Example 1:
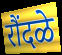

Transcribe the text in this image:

रौंदळे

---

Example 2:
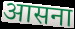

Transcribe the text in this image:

आसना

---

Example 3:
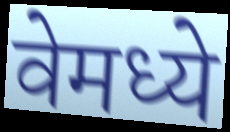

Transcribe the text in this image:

वेमध्ये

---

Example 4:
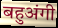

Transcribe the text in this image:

बहुअंगी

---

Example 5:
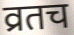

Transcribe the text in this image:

व्रतच